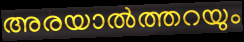
അരയാൽത്തറയും